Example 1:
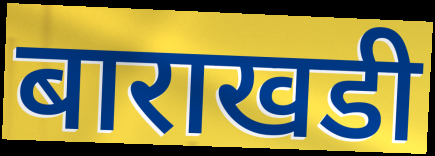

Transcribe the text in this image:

बाराखडी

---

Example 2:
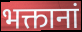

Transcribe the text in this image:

भक्तानां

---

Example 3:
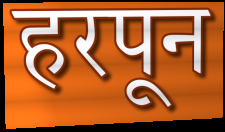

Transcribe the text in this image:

हरपून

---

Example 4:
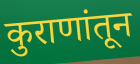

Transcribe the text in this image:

कुराणांतून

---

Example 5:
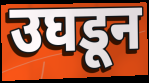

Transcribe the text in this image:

उघडून